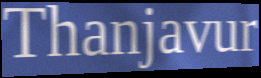
Thanjavur